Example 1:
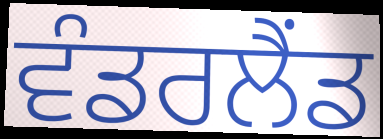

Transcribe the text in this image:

ਵੰਡਰਲੈਂਡ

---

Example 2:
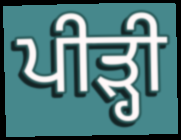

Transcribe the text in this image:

ਪੀੜ੍ਹੀ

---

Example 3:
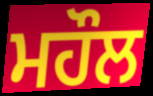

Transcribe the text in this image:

ਮਹੌਲ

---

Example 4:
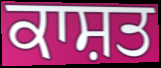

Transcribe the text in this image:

ਕਾਸ਼ਤ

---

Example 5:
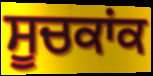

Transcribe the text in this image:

ਸੂਚਕਾਂਕ